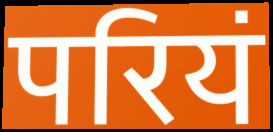
परियं